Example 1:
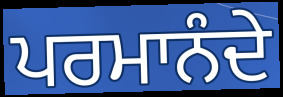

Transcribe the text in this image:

ਪਰਮਾਨੰਦੇ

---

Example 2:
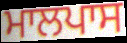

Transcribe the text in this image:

ਮਾਲਪਾਸ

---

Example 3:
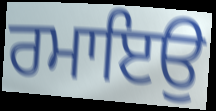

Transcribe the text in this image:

ਰਮਾਇਉ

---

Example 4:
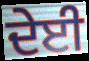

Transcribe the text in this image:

ਦੇਈ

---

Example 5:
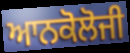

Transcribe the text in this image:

ਆਨਕੋਲੋਜੀ